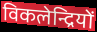
विकलेन्द्रियों